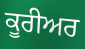
ਕੂਰੀਅਰ